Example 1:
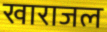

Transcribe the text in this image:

खाराजल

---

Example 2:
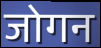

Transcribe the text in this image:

जोगन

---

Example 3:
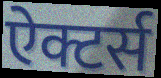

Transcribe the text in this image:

ऐक्टर्स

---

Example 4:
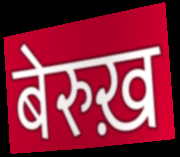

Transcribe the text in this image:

बेरुख़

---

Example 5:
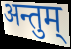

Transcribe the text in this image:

अन्तुम्